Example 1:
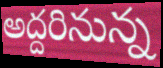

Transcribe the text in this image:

అద్దరినున్న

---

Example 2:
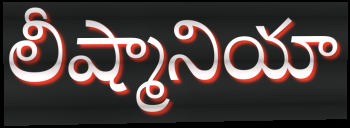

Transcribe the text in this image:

లీష్మానియా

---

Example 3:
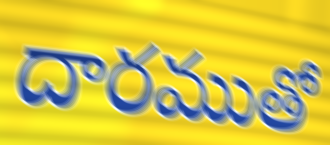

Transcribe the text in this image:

దారముతో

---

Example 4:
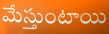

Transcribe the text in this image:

మేస్తుంటాయి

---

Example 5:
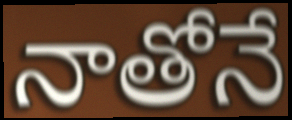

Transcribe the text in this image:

నాతోనే